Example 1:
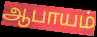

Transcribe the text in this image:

ஆபாயம்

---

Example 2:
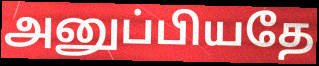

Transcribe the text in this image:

அனுப்பியதே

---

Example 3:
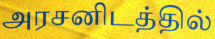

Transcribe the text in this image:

அரசனிடத்தில்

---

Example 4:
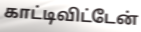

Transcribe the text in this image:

காட்டிவிட்டேன்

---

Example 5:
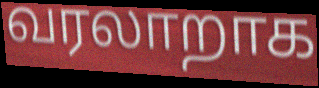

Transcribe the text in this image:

வரலாறாக